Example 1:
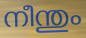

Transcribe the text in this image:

നീന്തും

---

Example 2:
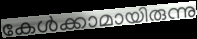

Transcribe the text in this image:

കേൾക്കാമായിരുന്നു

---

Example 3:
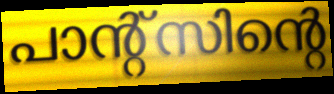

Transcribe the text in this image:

പാന്റ്സിന്റെ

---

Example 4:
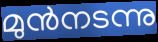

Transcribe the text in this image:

മുൻനടന്നു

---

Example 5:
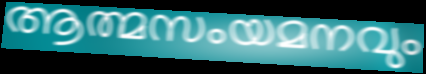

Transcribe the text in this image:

ആത്മസംയമനവും